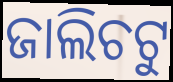
ଜାଲିଚଟୁ